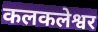
कलकलेश्वर